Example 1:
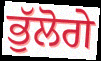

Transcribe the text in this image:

ਭੁੱਲੋਗੇ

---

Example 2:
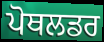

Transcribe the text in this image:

ਪੋਥਲਡਰ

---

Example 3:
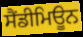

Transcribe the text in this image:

ਸੈਂਡੀਮਿਊਨ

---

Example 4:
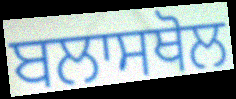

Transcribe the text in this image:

ਬਲਾਸਥੋਲ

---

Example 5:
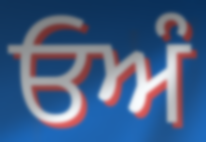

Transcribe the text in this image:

ਓਅੰ